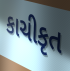
કાચીકૃત